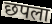
छपला